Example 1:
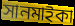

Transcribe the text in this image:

সানমাইকা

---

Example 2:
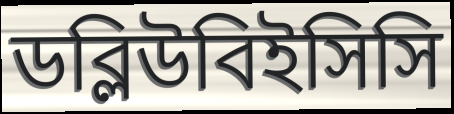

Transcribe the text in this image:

ডব্লিউবিইসিসি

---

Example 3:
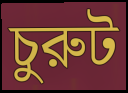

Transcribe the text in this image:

চুরুট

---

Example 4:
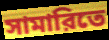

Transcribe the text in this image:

সামারিতে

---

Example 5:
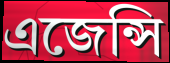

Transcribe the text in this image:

এজেন্সি